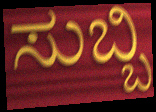
ಸುಬ್ಬಿ